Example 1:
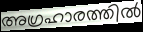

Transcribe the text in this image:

അഗ്രഹാരത്തിൽ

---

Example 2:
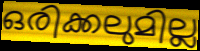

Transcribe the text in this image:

ഒരിക്കലുമില്ല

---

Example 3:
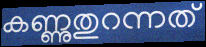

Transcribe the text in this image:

കണ്ണുതുറന്നത്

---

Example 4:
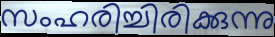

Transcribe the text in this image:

സംഹരിച്ചിരിക്കുന്നു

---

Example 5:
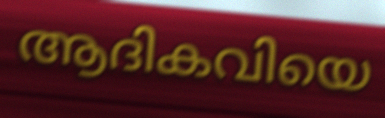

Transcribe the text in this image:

ആദികവിയെ